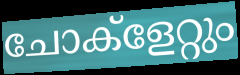
ചോക്ളേറ്റും